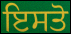
ਇਸਤੋ